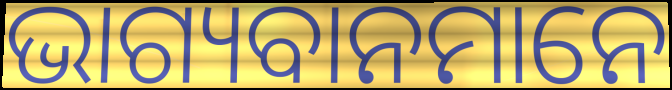
ଭାଗ୍ୟବାନମାନେ